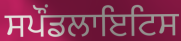
ਸਪੌਂਡਲਾਇਟਿਸ